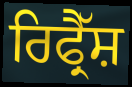
ਰਿਫ੍ਰੈੱਸ਼